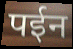
पईन